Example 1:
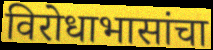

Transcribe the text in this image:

विरोधाभासांचा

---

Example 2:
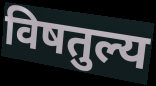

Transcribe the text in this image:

विषतुल्य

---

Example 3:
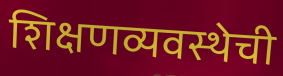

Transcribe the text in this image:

शिक्षणव्यवस्थेची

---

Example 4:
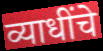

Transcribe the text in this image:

व्याधींचे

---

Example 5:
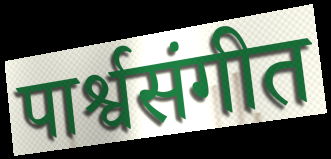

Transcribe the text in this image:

पार्श्वसंगीत